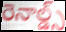
రెనాల్డ్స్